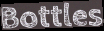
Bottles